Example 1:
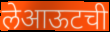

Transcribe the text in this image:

लेआऊटची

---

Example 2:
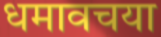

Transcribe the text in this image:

धमावचया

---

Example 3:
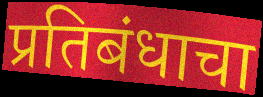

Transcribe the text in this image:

प्रतिबंधाचा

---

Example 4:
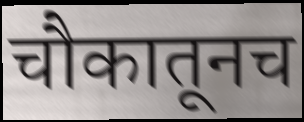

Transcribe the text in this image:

चौकातूनच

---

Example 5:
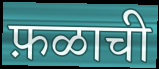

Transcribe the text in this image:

फ़ळाची